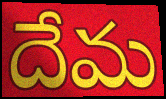
దేమ